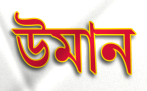
উমান